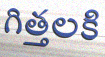
గిత్తలకి